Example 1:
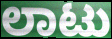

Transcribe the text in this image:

ಲಾಟು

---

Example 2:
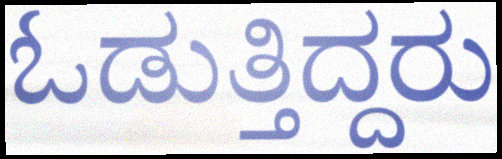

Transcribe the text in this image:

ಓಡುತ್ತಿದ್ದರು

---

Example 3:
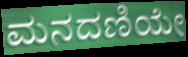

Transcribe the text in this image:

ಮನದಣಿಯೇ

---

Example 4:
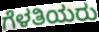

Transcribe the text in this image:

ಗೆಳತಿಯರು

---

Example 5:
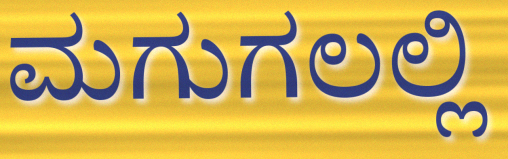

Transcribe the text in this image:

ಮಗುಗಲಲ್ಲಿ